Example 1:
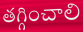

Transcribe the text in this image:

తగ్గించాలి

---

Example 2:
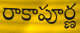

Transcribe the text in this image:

రాకాపూర్ణ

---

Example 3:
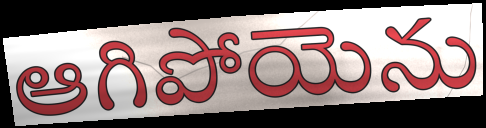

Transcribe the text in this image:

ఆగిపోయెను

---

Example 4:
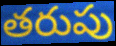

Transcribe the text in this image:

తరుపు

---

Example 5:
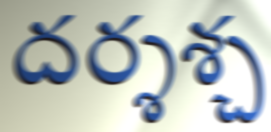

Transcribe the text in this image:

దర్శశ్చ